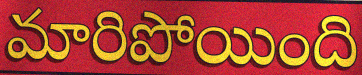
మారిపోయింది